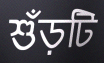
শুঁড়টি